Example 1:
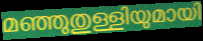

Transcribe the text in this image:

മഞ്ഞുതുള്ളിയുമായി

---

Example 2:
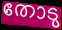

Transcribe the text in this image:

തോടു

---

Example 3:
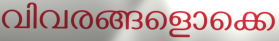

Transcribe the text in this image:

വിവരങ്ങളൊക്കെ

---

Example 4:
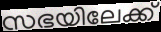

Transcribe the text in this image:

സഭയിലേക്ക്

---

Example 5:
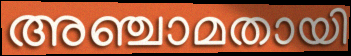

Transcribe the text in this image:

അഞ്ചാമതായി